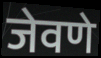
जेवणे